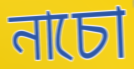
নাচো